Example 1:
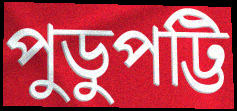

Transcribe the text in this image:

পুডুপট্টি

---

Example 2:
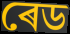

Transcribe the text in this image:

ৰেড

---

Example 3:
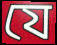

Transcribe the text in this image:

যে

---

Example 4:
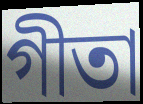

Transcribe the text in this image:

গীতা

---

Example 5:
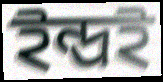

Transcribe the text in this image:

ইন্দ্ৰই